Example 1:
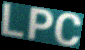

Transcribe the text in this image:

LPC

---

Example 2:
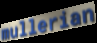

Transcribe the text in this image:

mullerian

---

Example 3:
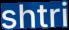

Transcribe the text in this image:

shtri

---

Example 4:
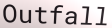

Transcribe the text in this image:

Outfall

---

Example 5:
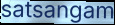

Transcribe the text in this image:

satsangam